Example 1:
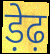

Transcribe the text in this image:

ड़ेढ़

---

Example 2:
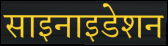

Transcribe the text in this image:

साइनाइडेशन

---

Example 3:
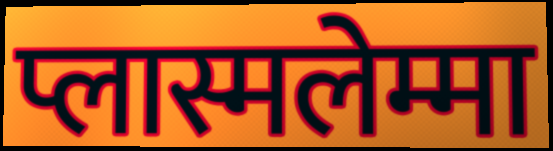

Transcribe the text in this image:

प्लास्मलेम्मा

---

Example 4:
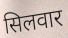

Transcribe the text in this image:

सिलवार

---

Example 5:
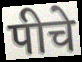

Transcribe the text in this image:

पीचे